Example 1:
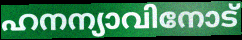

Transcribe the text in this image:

ഹനന്യാവിനോട്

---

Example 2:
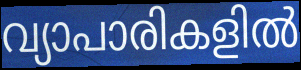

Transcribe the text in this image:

വ്യാപാരികളിൽ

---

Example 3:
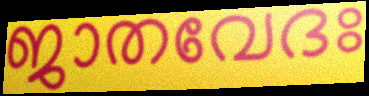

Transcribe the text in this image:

ജാതവേദഃ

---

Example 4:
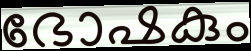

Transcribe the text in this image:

ഭോഷകും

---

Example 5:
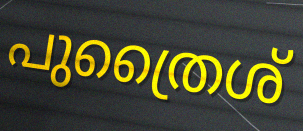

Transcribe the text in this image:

പുത്രൈശ്